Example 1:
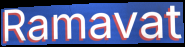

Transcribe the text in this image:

Ramavat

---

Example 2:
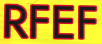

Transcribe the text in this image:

RFEF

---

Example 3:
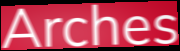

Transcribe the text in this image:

Arches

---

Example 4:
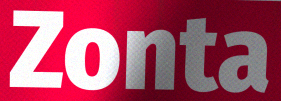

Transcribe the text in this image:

Zonta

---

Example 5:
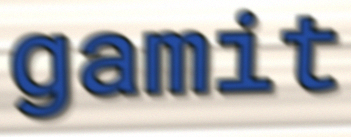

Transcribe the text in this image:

gamit